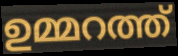
ഉമ്മറത്ത്